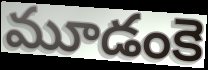
మూడంకె